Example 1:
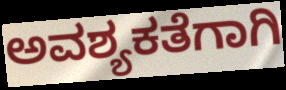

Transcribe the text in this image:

ಅವಶ್ಯಕತೆಗಾಗಿ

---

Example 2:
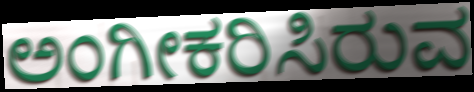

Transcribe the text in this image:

ಅಂಗೀಕರಿಸಿರುವ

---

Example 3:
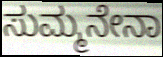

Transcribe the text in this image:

ಸುಮ್ಮನೇನಾ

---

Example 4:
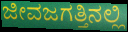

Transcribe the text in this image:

ಜೀವಜಗತ್ತಿನಲ್ಲಿ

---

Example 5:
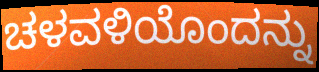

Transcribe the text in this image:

ಚಳವಳಿಯೊಂದನ್ನು